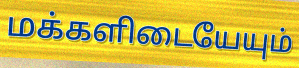
மக்களிடையேயும்